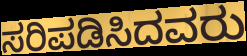
ಸರಿಪಡಿಸಿದವರು